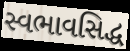
સ્વભાવસિદ્ધ